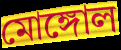
মোঙ্গোল